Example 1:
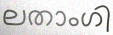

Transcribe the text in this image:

ലതാംഗി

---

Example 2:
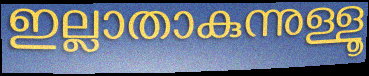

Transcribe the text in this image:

ഇല്ലാതാകുന്നുള്ളൂ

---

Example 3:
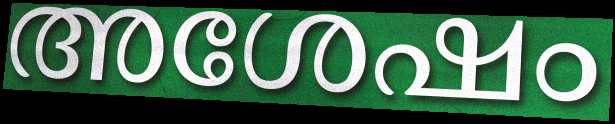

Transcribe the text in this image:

അശേഷം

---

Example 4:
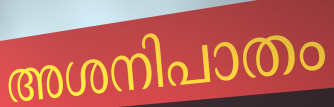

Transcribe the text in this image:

അശനിപാതം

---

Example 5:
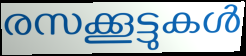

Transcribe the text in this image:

രസക്കൂട്ടുകൾ